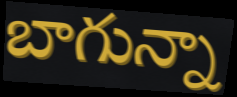
బాగున్నా